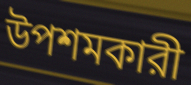
উপশমকারী